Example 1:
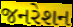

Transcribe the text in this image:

જનરેશન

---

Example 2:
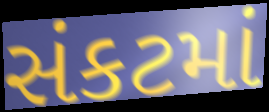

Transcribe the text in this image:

સંકટમાં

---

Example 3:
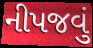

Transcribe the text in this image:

નીપજવું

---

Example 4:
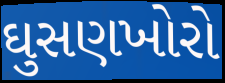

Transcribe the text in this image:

ઘુસણખોરો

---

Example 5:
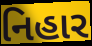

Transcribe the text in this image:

નિહાર